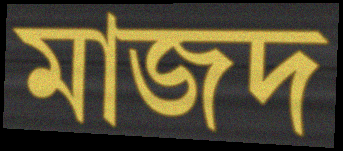
মাজদ